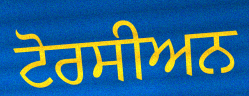
ਟੋਰਸੀਅਨ